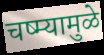
चष्म्यामुळे